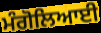
ਮੰਗੋਲਿਆਈ